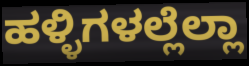
ಹಳ್ಳಿಗಳಲ್ಲೆಲ್ಲಾ